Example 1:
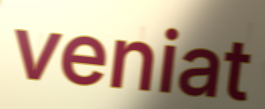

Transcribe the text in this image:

veniat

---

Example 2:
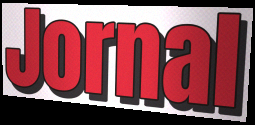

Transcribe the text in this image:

Jornal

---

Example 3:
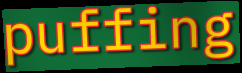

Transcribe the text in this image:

puffing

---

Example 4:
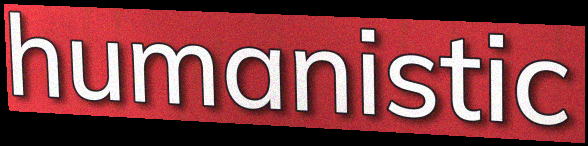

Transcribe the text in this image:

humanistic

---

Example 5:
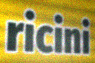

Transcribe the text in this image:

ricini